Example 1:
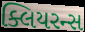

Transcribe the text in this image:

ક્લિયરન્સ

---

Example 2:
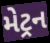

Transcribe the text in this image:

મેટ્રન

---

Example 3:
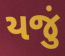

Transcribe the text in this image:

યજું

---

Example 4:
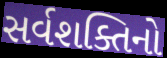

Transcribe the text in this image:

સર્વશક્તિનો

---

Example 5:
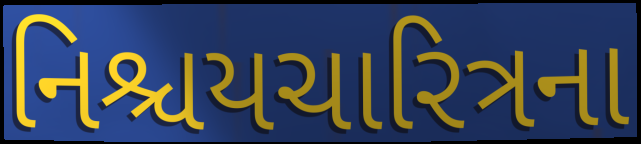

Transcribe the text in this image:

નિશ્ચયચારિત્રના